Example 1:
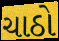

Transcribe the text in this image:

ચાઠો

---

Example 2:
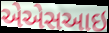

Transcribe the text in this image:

એએસઆઇ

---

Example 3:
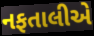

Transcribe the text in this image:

નફતાલીએ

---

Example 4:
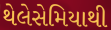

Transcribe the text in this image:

થેલેસેમિયાથી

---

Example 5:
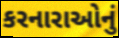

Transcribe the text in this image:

કરનારાઓનું